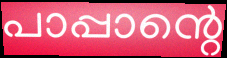
പാപ്പാന്റെ